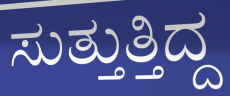
ಸುತ್ತುತ್ತಿದ್ದ